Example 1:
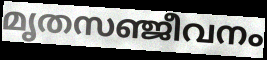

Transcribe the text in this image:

മൃതസഞ്ജീവനം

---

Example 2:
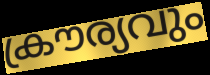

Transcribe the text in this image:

ക്രൗര്യവും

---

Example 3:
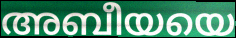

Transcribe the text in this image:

അബീയയെ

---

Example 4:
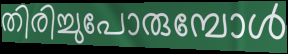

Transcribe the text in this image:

തിരിച്ചുപോരുമ്പോൾ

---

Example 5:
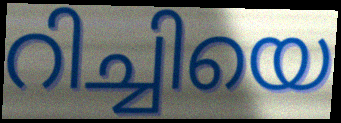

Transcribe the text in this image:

റിച്ചിയെ